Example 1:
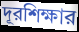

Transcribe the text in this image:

দূরশিক্ষার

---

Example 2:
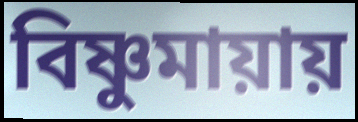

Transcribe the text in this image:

বিষ্ণুমায়ায়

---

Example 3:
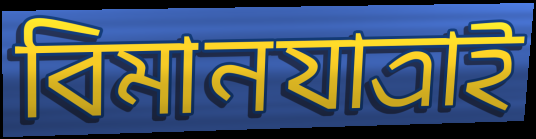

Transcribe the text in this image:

বিমানযাত্রাই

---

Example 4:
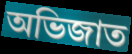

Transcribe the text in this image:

অভিজাত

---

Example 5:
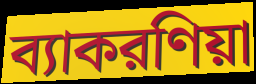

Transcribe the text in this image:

ব্যাকরণিয়া